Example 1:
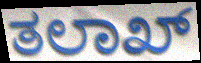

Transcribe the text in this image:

ತಲಾಖ್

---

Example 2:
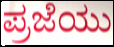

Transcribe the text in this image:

ಪ್ರಜೆಯು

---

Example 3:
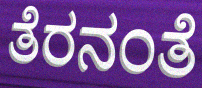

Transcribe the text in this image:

ತೆರನಂತೆ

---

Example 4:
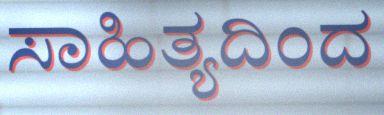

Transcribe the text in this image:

ಸಾಹಿತ್ಯದಿಂದ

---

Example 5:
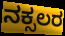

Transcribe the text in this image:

ನಕ್ಸಲರ